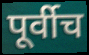
पूर्वीच